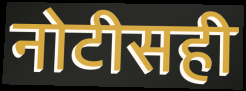
नोटीसही